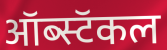
ऑब्स्टॅकल